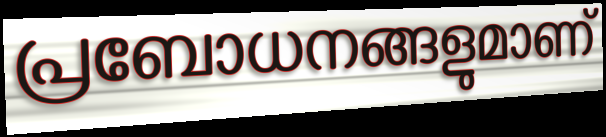
പ്രബോധനങ്ങളുമാണ്